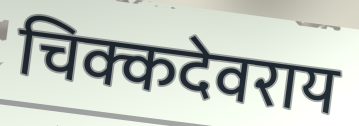
चिक्कदेवराय